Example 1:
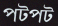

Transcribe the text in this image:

পটপট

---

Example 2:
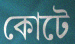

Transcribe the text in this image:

কোটে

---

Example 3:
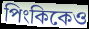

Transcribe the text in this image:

পিংকিকেও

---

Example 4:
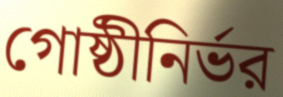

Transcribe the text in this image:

গোষ্ঠীনির্ভর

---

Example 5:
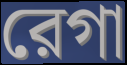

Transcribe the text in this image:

রেগা